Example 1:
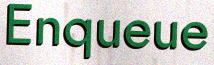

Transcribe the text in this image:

Enqueue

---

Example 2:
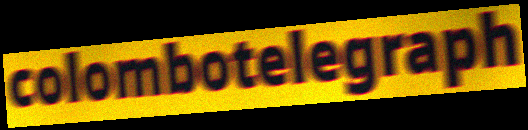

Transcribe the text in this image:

colombotelegraph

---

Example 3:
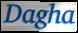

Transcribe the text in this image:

Dagha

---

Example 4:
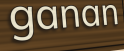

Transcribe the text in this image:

ganan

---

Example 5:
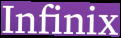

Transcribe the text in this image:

Infinix